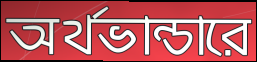
অর্থভান্ডারে